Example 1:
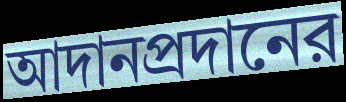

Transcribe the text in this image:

আদানপ্রদানের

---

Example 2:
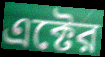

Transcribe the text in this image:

এক্টের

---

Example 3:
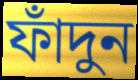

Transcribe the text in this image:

ফাঁদুন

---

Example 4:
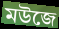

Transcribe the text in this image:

মউজে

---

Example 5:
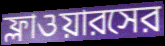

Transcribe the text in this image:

ফ্লাওয়ারসের